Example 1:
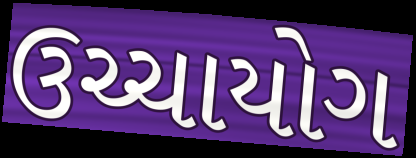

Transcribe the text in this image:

ઉચ્ચાયોગ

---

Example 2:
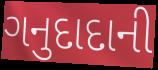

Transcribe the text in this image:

ગનુદાદાની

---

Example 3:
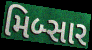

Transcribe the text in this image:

મિબ્સાર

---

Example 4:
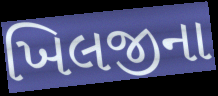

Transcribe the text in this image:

ખિલજીના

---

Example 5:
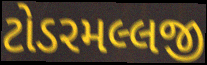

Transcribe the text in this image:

ટોડરમલ્લજી